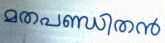
മതപണ്ഡിതൻ